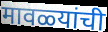
मावळ्यांची